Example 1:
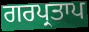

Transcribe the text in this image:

ਗਰਪ੍ਰਤਾਪ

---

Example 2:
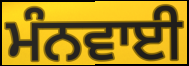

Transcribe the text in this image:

ਮੰਨਵਾਈ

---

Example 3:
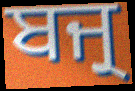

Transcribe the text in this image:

ਬਜ੍ਰ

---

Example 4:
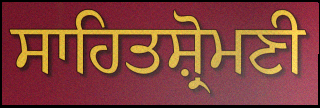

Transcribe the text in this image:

ਸਾਹਿਤਸ਼੍ਰੋਮਣੀ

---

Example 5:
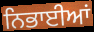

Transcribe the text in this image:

ਨਿਭਾਈਆਂ